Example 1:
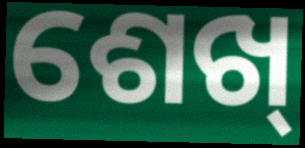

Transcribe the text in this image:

ଶେଖ୍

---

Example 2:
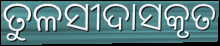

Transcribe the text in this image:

ତୁଳସୀଦାସକୃତ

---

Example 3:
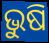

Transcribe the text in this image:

ଭୁଷି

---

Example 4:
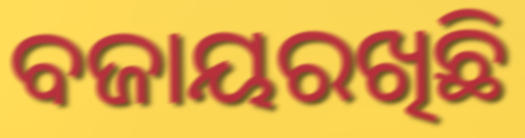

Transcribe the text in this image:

ବଜାୟରଖିଛି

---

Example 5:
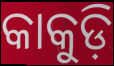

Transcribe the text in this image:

କାକୁଡ଼ି